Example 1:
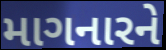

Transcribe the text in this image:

માગનારને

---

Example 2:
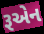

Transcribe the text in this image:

રૂએન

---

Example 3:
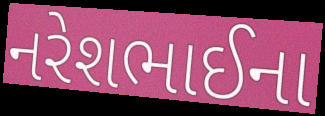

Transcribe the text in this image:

નરેશભાઈના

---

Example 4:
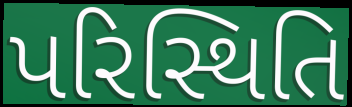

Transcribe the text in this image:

પરિસ્થિતિ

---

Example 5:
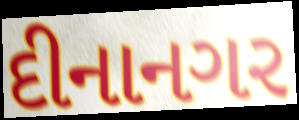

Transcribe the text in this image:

દીનાનગર